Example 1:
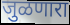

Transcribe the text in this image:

जुळणारा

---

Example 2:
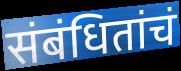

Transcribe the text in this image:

संबंधितांचं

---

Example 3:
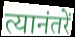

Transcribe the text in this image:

त्यानंतरें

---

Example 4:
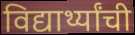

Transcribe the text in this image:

विद्यार्थ्‍यांची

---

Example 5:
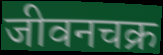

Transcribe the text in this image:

जीवनचक्र